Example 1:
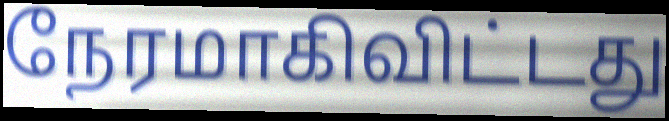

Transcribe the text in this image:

நேரமாகிவிட்டது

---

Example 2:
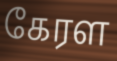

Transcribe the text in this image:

கேரள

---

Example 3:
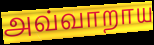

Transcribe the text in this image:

அவ்வாறாய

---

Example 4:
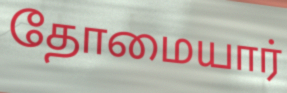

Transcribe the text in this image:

தோமையார்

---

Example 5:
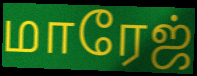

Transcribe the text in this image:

மாரேஜ்